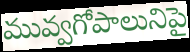
మువ్వగోపాలునిపై